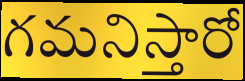
గమనిస్తారో